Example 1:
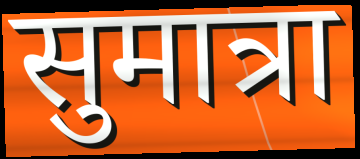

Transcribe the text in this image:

सुमात्रा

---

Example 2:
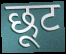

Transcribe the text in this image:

छूट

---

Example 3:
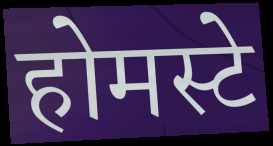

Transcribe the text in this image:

होमस्टे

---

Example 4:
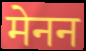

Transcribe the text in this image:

मेनन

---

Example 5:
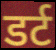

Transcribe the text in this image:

डर्ट